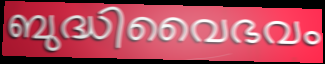
ബുദ്ധിവൈഭവം